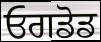
ਓਗਡੋਡ